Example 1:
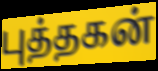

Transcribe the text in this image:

புத்தகன்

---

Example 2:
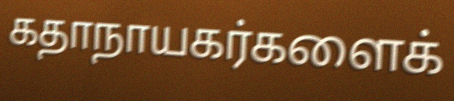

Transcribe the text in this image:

கதாநாயகர்களைக்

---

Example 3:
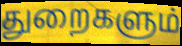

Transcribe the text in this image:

துறைகளும்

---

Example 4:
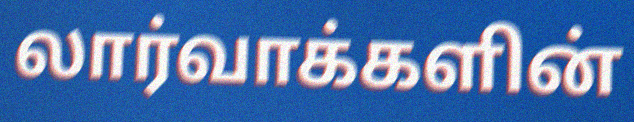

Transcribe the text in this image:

லார்வாக்களின்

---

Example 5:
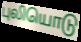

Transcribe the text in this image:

புலியொடு